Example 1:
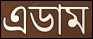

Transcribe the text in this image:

এডাম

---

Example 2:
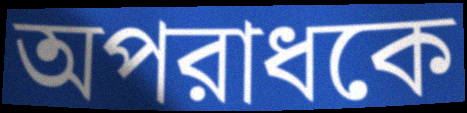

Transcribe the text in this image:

অপরাধকে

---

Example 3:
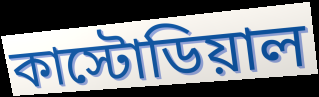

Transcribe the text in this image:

কাস্টোডিয়াল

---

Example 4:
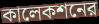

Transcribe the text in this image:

কালেকশনের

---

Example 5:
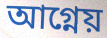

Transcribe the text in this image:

আগ্নেয়